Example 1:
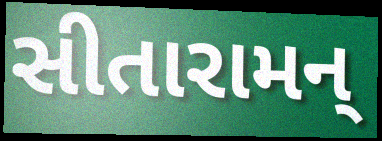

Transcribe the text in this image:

સીતારામન્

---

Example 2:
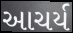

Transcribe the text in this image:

આચર્ય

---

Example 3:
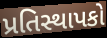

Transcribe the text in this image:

પ્રતિસ્થાપકો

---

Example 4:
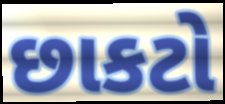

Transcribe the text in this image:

છાકટો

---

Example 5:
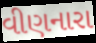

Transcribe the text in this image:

વીણનારા